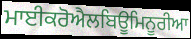
ਮਾਈਕਰੋਐਲਬਿਊਮਿਨੂਰੀਆ